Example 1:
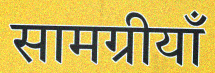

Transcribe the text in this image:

सामग्रीयाँ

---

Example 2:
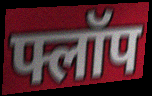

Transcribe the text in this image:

फ्लॉप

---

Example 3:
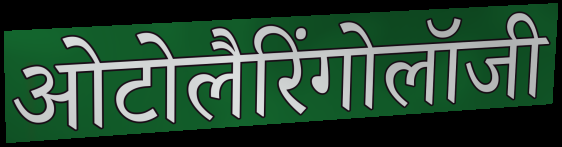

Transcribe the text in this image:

ओटोलैरिंगोलॉजी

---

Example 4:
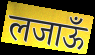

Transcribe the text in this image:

लजाऊँ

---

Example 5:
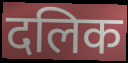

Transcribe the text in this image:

दलिक